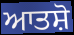
ਆਤਸ਼ੋ